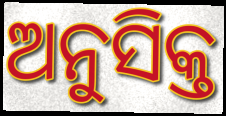
ଅନୁସିକ୍ତ